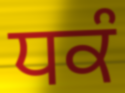
ਧਕੰ